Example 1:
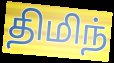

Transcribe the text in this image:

திமிந்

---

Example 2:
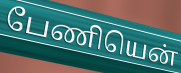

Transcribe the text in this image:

பேணியென்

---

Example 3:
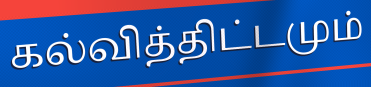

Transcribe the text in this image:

கல்வித்திட்டமும்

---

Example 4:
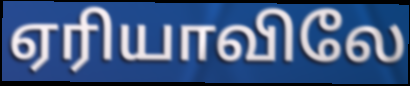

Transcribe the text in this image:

ஏரியாவிலே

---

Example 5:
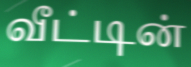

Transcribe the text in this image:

வீட்டின்